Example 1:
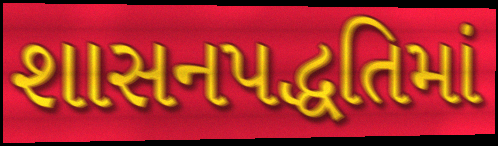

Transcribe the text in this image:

શાસનપદ્ધતિમાં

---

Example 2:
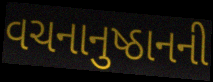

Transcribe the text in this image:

વચનાનુષ્ઠાનની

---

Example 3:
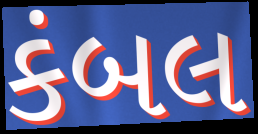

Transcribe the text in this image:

કંબલ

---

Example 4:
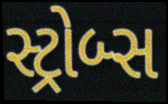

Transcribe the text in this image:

સ્ટ્રોબ્સ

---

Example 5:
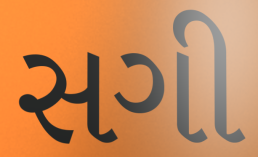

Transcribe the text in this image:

સગી